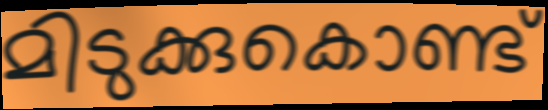
മിടുക്കുകൊണ്ട്